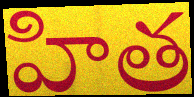
హిత